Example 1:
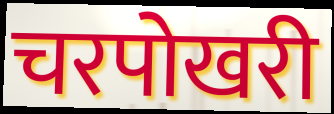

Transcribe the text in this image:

चरपोखरी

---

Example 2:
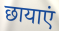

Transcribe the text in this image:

छायाएं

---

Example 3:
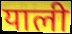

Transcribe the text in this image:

याली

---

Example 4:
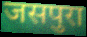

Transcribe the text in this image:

जसपुरा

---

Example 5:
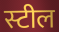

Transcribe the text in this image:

स्‍टील